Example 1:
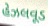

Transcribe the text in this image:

હેઝલવૂડ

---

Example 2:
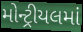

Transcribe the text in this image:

મોન્ટ્રીયલમાં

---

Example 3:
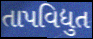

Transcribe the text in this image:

તાપવિદ્યુત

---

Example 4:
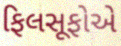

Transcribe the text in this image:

ફિલસૂફોએ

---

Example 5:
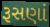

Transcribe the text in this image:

રૂસણાં